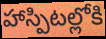
హాస్పిటల్లోకి